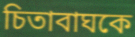
চিতাবাঘকে